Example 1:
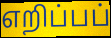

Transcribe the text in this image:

எறிப்பப்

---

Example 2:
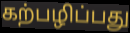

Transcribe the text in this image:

கற்பழிப்பது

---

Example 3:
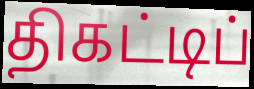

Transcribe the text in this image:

திகட்டிப்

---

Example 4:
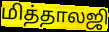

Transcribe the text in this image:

மித்தாலஜி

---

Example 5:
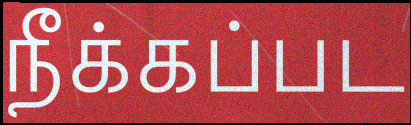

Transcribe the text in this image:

நீக்கப்பட